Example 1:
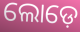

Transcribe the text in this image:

ଲୋଡ଼େ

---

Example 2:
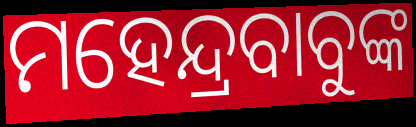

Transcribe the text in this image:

ମହେନ୍ଦ୍ରବାବୁଙ୍କ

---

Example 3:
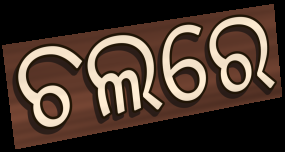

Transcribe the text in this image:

ଚଲରେ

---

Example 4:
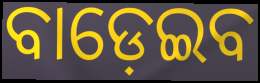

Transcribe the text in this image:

ବାଡ଼େଇବ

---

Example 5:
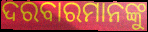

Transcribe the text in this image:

ଦରବାରମାନଙ୍କୁ